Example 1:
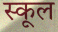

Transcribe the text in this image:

स्‍कूल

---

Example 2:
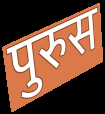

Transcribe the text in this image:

पुरुस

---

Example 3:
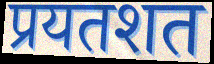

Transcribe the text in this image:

प्रयतशत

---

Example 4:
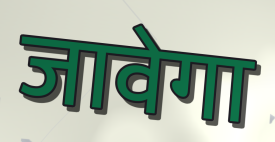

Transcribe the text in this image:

जावेगा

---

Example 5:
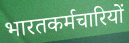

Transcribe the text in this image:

भारतकर्मचारियों